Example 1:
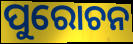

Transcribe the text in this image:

ପୁରୋଚନ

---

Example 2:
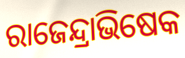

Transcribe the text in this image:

ରାଜେନ୍ଦ୍ରାଭିଷେକ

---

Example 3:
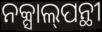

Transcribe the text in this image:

ନକ୍ସାଲ୍‌ପନ୍ଥୀ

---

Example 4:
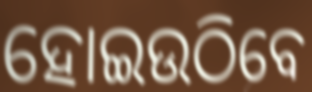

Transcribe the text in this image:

ହୋଇଉଠିବେ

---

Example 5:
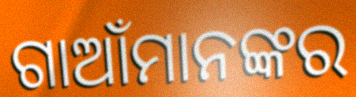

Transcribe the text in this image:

ଗାଆଁମାନଙ୍କର